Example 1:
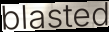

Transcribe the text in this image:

blasted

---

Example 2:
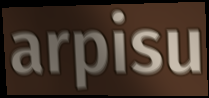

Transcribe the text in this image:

arpisu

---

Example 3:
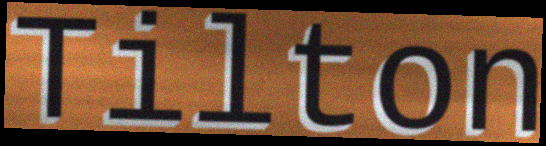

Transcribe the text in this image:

Tilton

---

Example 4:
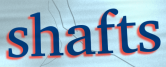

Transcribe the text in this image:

shafts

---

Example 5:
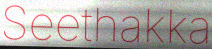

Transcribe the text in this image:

Seethakka